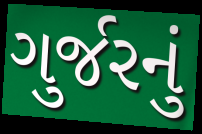
ગુર્જરનું